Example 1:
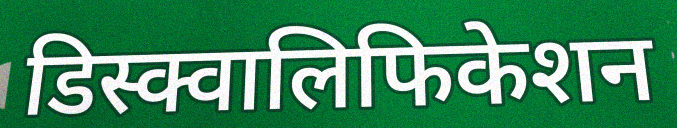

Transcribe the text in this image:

डिस्क्वालिफिकेशन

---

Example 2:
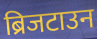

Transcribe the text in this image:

ब्रिजटाउन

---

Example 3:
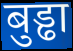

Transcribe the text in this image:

बुड्ढा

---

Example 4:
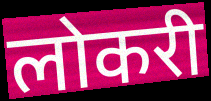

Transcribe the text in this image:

लोकरी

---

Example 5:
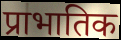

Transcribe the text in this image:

प्राभातिक